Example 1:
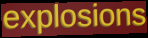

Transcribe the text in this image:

explosions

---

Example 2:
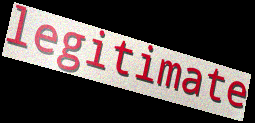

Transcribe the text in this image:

legitimate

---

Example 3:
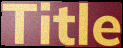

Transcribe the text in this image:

Title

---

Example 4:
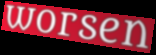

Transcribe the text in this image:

worsen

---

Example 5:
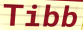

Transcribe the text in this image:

Tibb